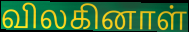
விலகினாள்